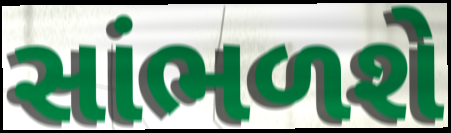
સાંભળશે